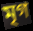
মৃগ